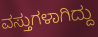
ವಸ್ತುಗಳಾಗಿದ್ದು